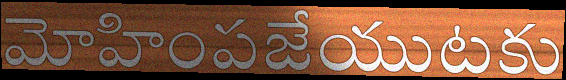
మోహింపజేయుటకు